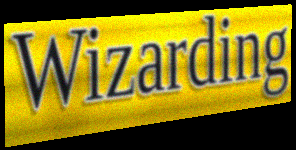
Wizarding